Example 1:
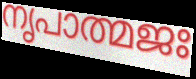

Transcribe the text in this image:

നൃപാത്മജഃ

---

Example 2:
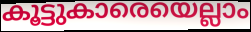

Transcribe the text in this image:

കൂട്ടുകാരെയെല്ലാം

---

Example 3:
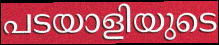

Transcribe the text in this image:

പടയാളിയുടെ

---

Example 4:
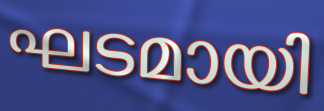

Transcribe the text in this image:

ഘടമായി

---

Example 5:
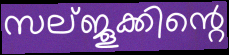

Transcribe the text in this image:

സല്ജൂക്കിന്റെ